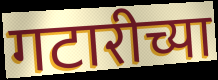
गटारीच्या